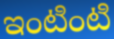
ఇంటింటి